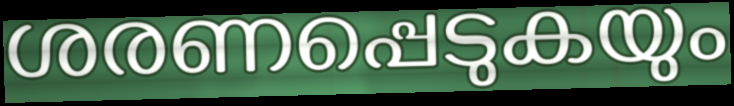
ശരണപ്പെടുകയും